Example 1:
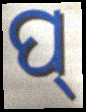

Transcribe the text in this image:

ପ୍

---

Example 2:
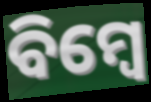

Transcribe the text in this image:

ବିମ୍ବେ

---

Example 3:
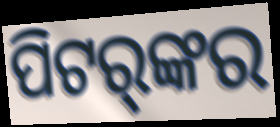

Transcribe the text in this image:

ପିଟର୍‌ଙ୍କର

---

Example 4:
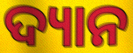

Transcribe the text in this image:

ଦ୍ୟାନ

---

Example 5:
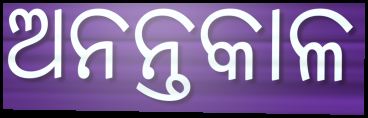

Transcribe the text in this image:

ଅନନ୍ତକାଳ